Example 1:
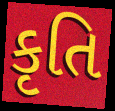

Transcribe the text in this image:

કૃતિ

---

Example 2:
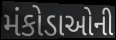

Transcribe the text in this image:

મંકોડાઓની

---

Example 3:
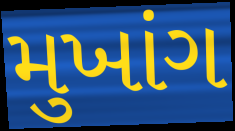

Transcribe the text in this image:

મુખાંગ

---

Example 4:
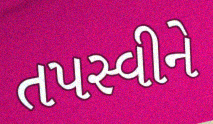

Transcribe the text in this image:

તપસ્વીને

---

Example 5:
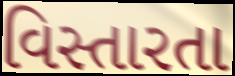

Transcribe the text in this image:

વિસ્તારતા